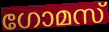
ഗോമസ്